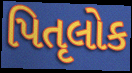
પિતૃલોક